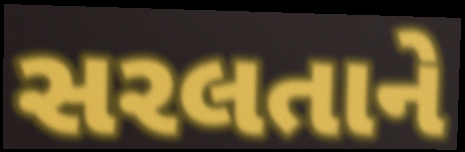
સરલતાને